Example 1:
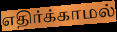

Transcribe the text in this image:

எதிர்க்காமல்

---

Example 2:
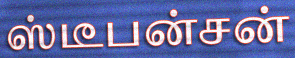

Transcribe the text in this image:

ஸ்டீபன்சன்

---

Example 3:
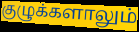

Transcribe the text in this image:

குழுக்களாலும்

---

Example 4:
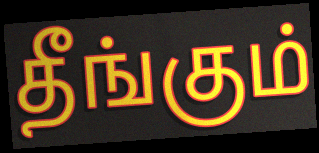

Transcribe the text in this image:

தீங்கும்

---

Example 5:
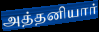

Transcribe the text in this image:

அத்தனியார்